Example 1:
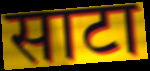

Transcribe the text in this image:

साटा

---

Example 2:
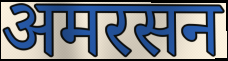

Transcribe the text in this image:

अमरसन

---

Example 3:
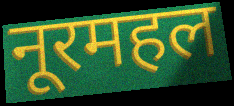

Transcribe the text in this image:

नूरमहल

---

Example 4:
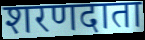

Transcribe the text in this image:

शरणदाता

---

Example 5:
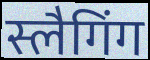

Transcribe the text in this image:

स्लैगिंग